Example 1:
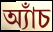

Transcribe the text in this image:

অ্যাঁচ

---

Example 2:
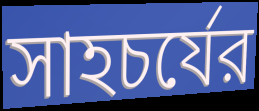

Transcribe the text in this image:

সাহচর্যের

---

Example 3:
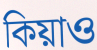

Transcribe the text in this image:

কিয়াও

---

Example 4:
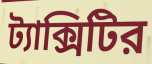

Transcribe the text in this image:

ট্যাক্সিটির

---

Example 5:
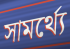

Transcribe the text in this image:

সামর্থ্যে